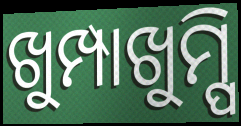
ଖୁମ୍ପାଖୁମ୍ପି